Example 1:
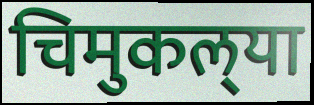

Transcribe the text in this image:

चिमुकल्या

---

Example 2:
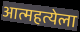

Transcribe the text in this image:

आत्महत्येला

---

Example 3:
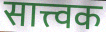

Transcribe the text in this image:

सात्त्वक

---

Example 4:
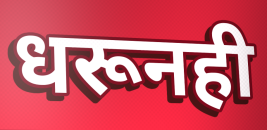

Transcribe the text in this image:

धरूनही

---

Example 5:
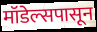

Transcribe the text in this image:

मॉडेल्सपासून